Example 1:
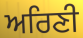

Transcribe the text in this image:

ਅਰਿਣੀ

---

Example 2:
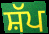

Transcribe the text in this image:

ਸ਼ੱਪ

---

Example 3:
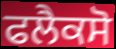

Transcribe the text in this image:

ਫਲੈਕਸੋ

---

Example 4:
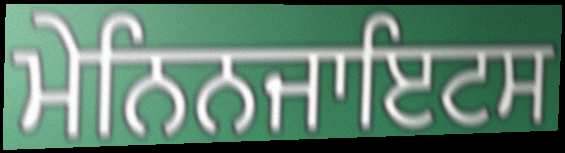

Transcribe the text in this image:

ਮੇਨਿਨਜਾਇਟਸ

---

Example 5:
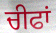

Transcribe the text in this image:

ਚੀਫਾਂ